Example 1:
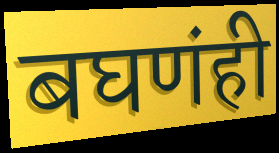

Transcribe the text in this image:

बघणंही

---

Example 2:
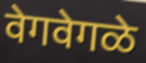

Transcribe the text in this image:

वेगवेगळे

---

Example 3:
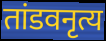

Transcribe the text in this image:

तांडवनृत्य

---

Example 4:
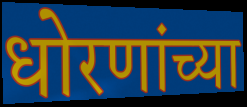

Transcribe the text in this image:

धोरणांच्या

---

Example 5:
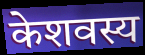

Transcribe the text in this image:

केशवस्य